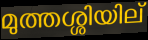
മുത്തശ്ശിയില്